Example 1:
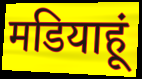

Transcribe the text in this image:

मडियाहूं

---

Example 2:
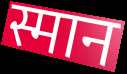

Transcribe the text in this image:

स्मान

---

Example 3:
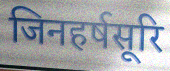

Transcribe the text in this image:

जिनहर्षसूरि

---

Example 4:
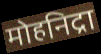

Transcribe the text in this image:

मोहनिद्रा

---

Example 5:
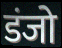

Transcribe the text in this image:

डंजो